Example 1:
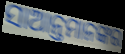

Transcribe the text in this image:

ସାଆନ୍ତମାନଙ୍କର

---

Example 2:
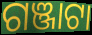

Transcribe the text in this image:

ଗଞ୍ଜାଟା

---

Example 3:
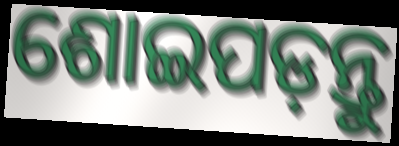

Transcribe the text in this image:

ଶୋଇପଡ଼ନ୍ତୁ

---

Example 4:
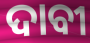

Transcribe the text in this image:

ଦାବୀ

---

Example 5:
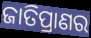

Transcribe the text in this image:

ଜାତିପ୍ରାଣର